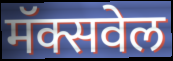
मॅक्सवेल